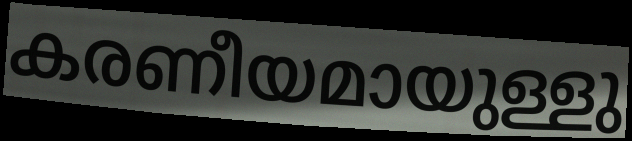
കരണീയമായുള്ളു